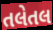
તલેતલ